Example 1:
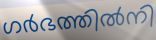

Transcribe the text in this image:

ഗർഭത്തിൽനി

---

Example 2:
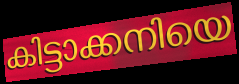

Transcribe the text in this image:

കിട്ടാക്കനിയെ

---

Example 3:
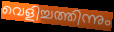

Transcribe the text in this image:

വെളിച്ചത്തിന്നും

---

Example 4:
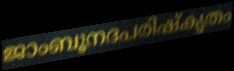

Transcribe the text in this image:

ജാംബൂനദപരിഷ്കൃതം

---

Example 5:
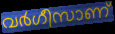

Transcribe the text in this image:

വർഗീസാണ്